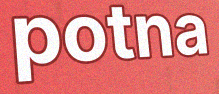
potna